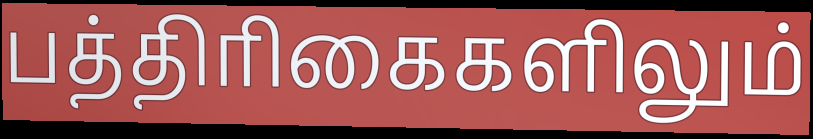
பத்திரிகைகளிலும்